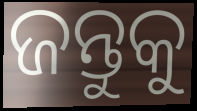
ଜନ୍ତୁକୁ